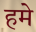
हमे